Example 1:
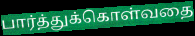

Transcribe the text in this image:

பார்த்துக்கொள்வதை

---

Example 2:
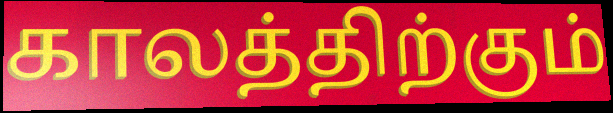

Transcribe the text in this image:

காலத்திற்கும்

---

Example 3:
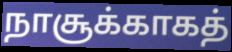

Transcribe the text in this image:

நாசூக்காகத்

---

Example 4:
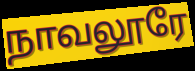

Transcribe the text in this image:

நாவலூரே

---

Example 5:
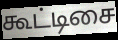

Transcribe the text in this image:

கூட்டிசை